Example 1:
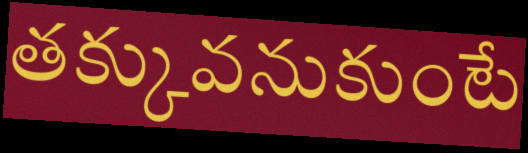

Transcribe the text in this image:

తక్కువనుకుంటే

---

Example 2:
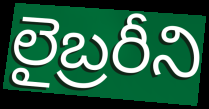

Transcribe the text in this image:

లైబ్రరీని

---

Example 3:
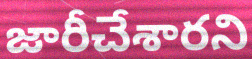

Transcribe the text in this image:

జారీచేశారని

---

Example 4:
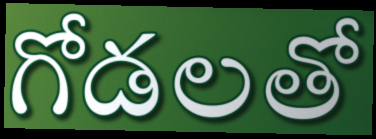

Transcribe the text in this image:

గోడలతో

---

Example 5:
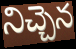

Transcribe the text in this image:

నిచ్చెన